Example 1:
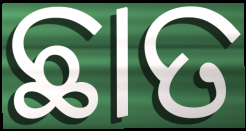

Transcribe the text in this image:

ଛାତ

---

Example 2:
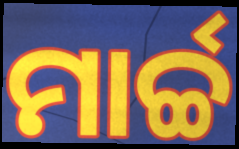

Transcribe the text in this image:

ମାର୍ଚ୍ଚ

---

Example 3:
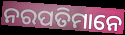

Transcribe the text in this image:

ନରପତିମାନେ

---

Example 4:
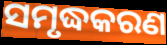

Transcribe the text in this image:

ସମୃଦ୍ଧକରଣ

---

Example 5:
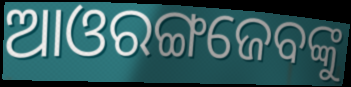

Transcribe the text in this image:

ଆଓରଙ୍ଗଜେବଙ୍କୁ